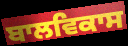
ਬਾਲਵਿਕਾਸ